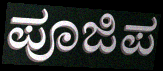
ಪೂಜಿಪ